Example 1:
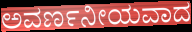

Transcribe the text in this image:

ಅವರ್ಣನೀಯವಾದ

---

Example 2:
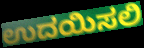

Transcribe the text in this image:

ಉದಯಿಸಲಿ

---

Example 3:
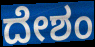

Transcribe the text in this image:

ದೇಶಂ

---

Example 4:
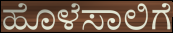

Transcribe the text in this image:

ಹೊಳೆಸಾಲಿಗೆ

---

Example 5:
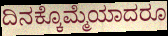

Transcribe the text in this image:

ದಿನಕ್ಕೊಮ್ಮೆಯಾದರೂ